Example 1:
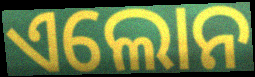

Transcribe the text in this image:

ଏଲୋନ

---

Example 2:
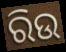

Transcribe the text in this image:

ରିଉ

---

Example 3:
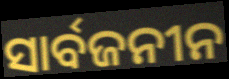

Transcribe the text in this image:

ସାର୍ବଜନୀନ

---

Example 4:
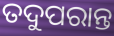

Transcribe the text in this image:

ତଦୁପରାନ୍ତ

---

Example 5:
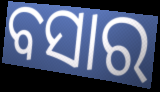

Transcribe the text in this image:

ବସାର